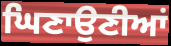
ਘਿਣਾਉਣੀਆਂ